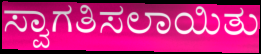
ಸ್ವಾಗತಿಸಲಾಯಿತು